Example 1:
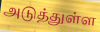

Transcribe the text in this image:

அடுத்துள்ள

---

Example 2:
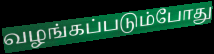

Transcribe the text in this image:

வழங்கப்படும்போது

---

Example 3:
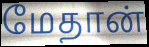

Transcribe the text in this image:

மேதான்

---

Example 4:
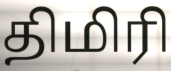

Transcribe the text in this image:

திமிரி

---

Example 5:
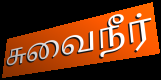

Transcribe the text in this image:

சுவைநீர்